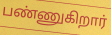
பண்ணுகிறார்